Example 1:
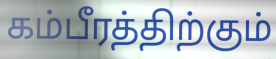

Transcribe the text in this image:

கம்பீரத்திற்கும்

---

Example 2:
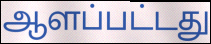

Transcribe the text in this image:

ஆளப்பட்டது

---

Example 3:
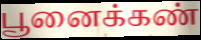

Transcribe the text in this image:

பூனைக்கண்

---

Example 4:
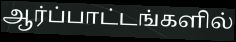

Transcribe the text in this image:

ஆர்ப்பாட்டங்களில்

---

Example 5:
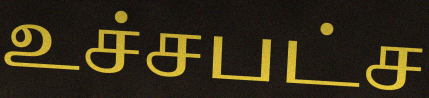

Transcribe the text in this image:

உச்சபட்ச